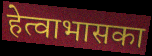
हेत्वाभासका